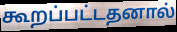
கூறப்பட்டதனால்